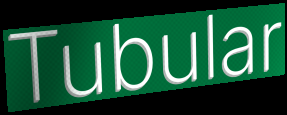
Tubular